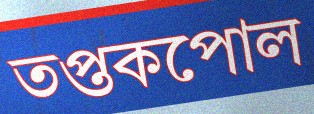
তপ্তকপোল